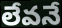
లేవనే